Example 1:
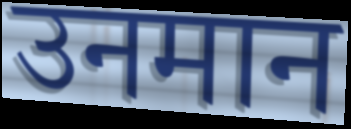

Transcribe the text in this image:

उनमान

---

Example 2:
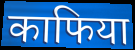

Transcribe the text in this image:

काफिया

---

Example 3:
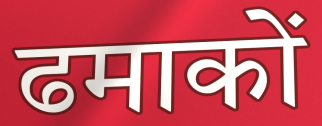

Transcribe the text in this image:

ढमाकों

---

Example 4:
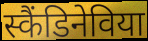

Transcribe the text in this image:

स्कैंडिनेविया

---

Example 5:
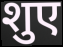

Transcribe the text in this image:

शुए